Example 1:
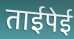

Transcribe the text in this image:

ताईपेई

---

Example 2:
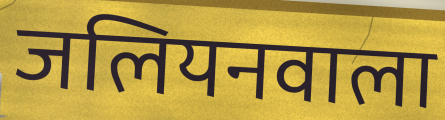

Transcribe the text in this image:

जलियनवाला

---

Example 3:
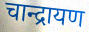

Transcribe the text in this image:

चान्द्रायण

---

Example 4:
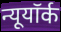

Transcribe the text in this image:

न्यूयॉर्क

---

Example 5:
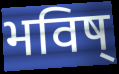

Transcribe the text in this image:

भविष्